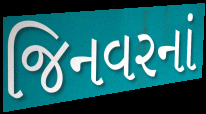
જિનવરનાં